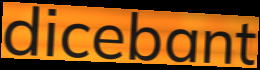
dicebant